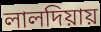
লালদিয়ায়